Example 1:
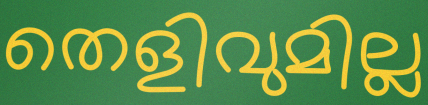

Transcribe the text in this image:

തെളിവുമില്ല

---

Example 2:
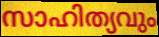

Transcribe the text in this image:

സാഹിത്യവും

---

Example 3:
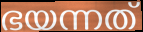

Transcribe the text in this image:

ഭയന്നത്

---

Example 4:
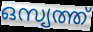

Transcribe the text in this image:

ഒസ്യത്ത്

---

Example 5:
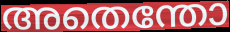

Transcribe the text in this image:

അതെന്തോ